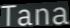
Tana